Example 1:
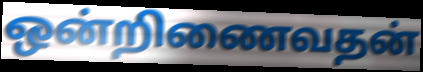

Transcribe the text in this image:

ஒன்றிணைவதன்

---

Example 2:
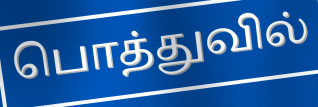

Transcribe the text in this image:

பொத்துவில்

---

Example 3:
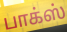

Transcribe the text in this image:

பாக்ஸ்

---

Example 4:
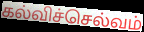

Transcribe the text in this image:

கல்விச்செல்வம்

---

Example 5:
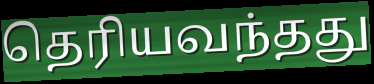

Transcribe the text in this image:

தெரியவந்தது